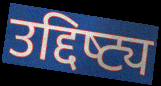
उद्दिष्ट्य